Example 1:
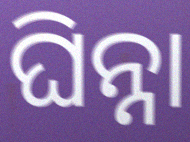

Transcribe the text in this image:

ଘିନ୍ନା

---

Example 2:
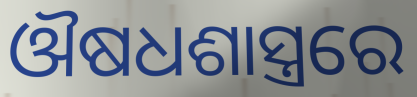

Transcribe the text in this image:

ଔଷଧଶାସ୍ତ୍ରରେ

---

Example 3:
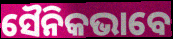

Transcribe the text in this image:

ସୈନିକଭାବେ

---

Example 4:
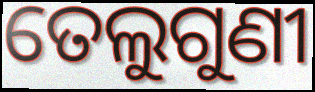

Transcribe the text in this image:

ତେଲୁଗୁଣୀ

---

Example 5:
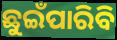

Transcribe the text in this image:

ଛୁଇଁପାରିବି